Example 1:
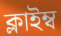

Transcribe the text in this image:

ক্লাইম্ব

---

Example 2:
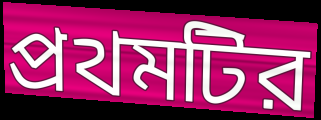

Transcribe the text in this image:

প্রথমটির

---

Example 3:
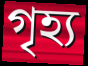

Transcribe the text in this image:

গৃহ্য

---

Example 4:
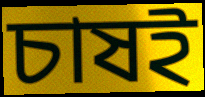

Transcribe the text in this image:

চাষই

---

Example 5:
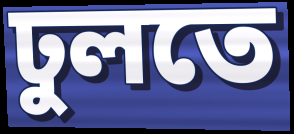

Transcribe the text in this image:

ঢুলতে